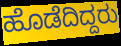
ಹೊಡೆದಿದ್ದರು